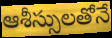
ఆశీస్సులతోనే